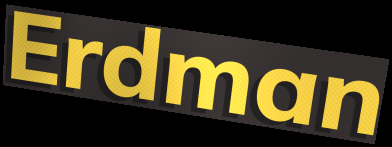
Erdman